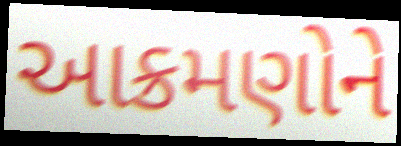
આક્રમણોને